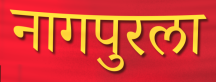
नागपुरला